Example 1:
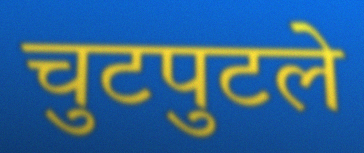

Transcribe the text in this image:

चुटपुटले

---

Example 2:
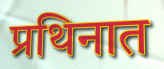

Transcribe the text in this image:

प्रथिनात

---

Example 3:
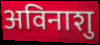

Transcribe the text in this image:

अविनाशु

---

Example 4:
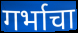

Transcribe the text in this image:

गर्भाचा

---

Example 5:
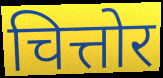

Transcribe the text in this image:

चित्तोर